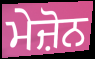
ਮੇਜ਼ੋਨ